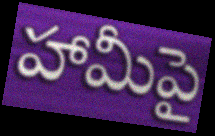
హామీపై